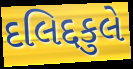
દલિદ્દકુલે